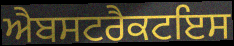
ਐਬਸਟਰੈਕਟਇਸ